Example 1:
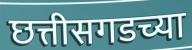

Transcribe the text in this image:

छत्तीसगडच्या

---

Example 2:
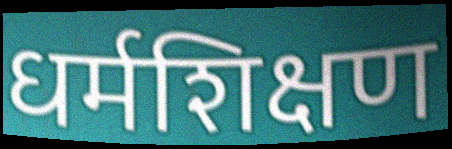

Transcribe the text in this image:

धर्मशिक्षण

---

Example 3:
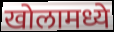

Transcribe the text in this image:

खोलामध्ये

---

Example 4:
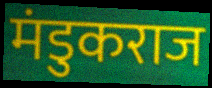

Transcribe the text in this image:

मंडुकराज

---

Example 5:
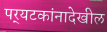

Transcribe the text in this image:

पर्यटकांनादेखील